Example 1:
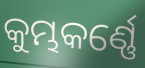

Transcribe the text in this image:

କୁମ୍ଭକର୍ଣ୍ଣେ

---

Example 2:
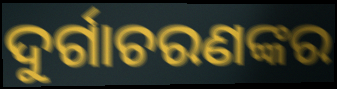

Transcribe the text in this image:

ଦୁର୍ଗାଚରଣଙ୍କର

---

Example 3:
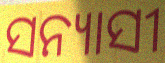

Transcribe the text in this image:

ସନ୍ଯାସୀ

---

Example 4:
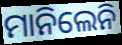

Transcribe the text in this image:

ମାନିଲେନି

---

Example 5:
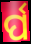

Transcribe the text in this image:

ର୍ପ